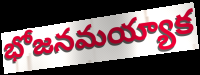
భోజనమయ్యాక